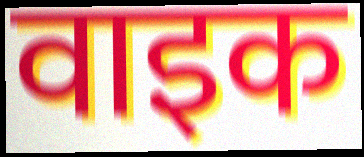
वाइक